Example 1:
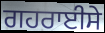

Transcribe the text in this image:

ਗਹਰਾਈਸੇ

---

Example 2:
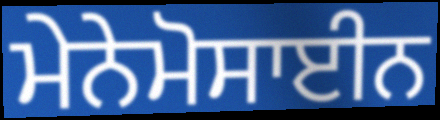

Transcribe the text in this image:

ਮੇਨੇਮੋਸਾਈਨ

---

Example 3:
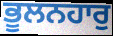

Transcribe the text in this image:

ਭੂਲਨਹਾਰੁ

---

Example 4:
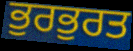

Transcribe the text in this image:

ਭੁਰਭੁਰਤ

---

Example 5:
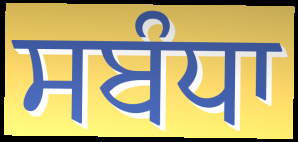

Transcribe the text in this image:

ਸਬੰਧਾ